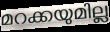
മറക്കയുമില്ല